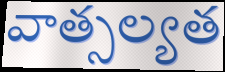
వాత్సల్యత